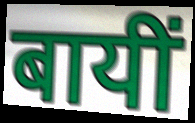
बायीं